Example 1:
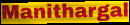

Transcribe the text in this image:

Manithargal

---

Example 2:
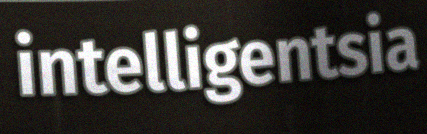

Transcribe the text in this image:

intelligentsia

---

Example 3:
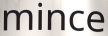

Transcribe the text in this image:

mince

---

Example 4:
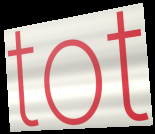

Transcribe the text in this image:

tot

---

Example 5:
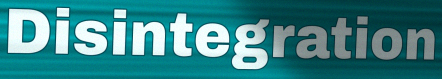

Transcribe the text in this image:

Disintegration